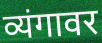
व्यंगावर